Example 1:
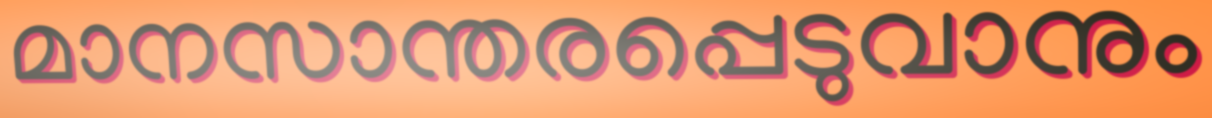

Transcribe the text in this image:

മാനസാന്തരപ്പെടുവാനും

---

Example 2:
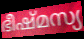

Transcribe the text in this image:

ഭീഷ്മസ്യ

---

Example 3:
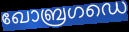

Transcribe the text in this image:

ഖോബ്രഗഡെ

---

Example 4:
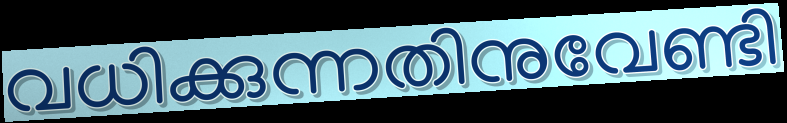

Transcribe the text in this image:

വധിക്കുന്നതിനുവേണ്ടി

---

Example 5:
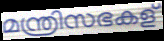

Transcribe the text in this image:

മന്ത്രിസഭകള്